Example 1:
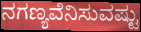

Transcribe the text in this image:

ನಗಣ್ಯವೆನಿಸುವಷ್ಟು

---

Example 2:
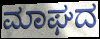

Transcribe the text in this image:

ಮಾಘದ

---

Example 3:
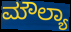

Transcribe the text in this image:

ಮೌಲ್ಯಾ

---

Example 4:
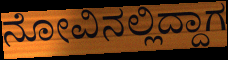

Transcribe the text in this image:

ನೋವಿನಲ್ಲಿದ್ದಾಗ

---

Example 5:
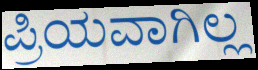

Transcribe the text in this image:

ಪ್ರಿಯವಾಗಿಲ್ಲ